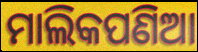
ମାଲିକପଣିଆ